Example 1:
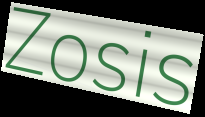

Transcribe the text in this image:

Zosis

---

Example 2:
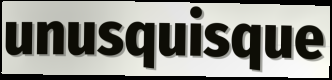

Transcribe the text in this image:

unusquisque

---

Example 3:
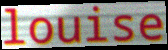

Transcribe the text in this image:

louise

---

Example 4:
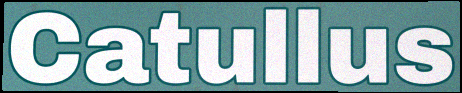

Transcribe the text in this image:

Catullus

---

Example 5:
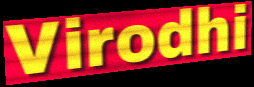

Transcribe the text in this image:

Virodhi